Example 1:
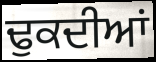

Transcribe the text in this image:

ਢੁਕਦੀਆਂ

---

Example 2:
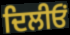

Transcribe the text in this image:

ਦਿਲੀਓਂ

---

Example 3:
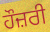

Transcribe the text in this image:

ਹੌਜ਼ਰੀ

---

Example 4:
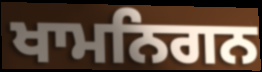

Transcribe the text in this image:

ਖਾਮਨਿਗਨ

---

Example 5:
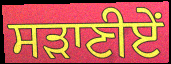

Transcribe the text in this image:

ਸੜਾਣੀਏਂ